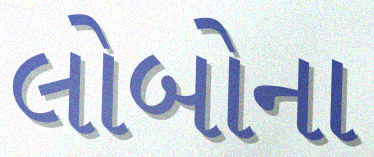
લોબોના